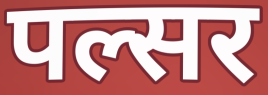
पल्सर